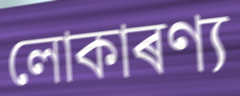
লোকাৰণ্য